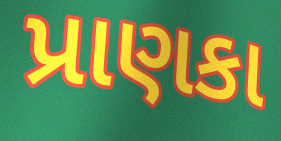
પ્રાણકા